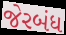
જેરબંધ